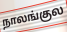
நாலங்குல